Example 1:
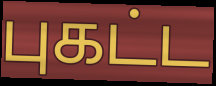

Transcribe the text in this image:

புகட்ட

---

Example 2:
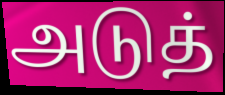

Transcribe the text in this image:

அடுத்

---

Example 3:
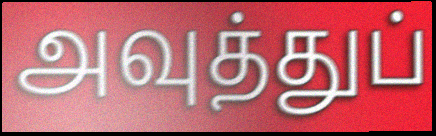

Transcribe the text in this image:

அவுத்துப்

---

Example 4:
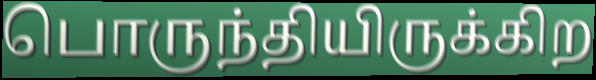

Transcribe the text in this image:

பொருந்தியிருக்கிற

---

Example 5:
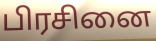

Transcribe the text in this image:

பிரசினை